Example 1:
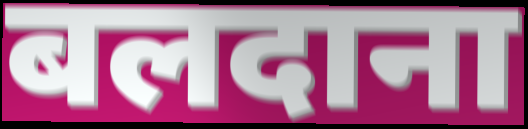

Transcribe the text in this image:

बलदाना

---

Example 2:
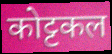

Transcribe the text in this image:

कोट्टकल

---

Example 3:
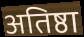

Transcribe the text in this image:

अतिष्ठा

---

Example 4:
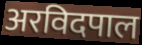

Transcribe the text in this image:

अरविदपाल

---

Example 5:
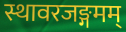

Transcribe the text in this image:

स्थावरजङ्गमम्